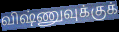
விஷ்ணுவுக்குக்